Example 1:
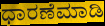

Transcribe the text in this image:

ಧಾರಣೆಮಾಡಿ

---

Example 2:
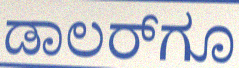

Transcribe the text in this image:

ಡಾಲರ್‌ಗೂ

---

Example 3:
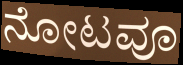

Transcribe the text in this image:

ನೋಟವೂ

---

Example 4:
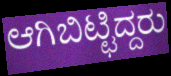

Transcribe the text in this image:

ಆಗಿಬಿಟ್ಟಿದ್ದರು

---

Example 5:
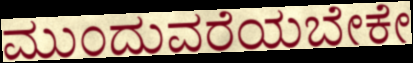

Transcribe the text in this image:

ಮುಂದುವರೆಯಬೇಕೇ